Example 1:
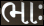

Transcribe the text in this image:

ભાઃ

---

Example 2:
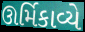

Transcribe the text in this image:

ઊર્મિકાવ્યે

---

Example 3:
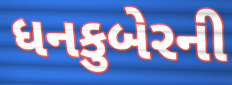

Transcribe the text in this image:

ધનકુબેરની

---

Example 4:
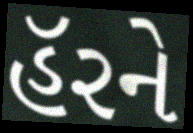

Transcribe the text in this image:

હૅરને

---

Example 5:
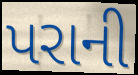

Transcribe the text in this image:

પરાની